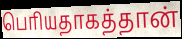
பெரியதாகத்தான்